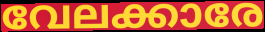
വേലക്കാരേ